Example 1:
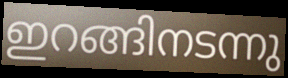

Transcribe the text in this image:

ഇറങ്ങിനടന്നു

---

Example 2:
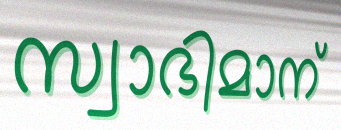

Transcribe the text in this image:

സ്വാഭിമാന്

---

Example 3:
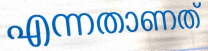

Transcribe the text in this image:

എന്നതാണത്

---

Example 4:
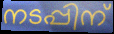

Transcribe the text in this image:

നടപ്പിന്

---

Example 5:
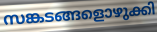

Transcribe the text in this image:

സങ്കടങ്ങളൊഴുക്കി